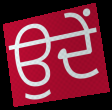
ਉਦੇਂ